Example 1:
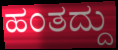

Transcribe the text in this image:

ಹಂತದ್ದು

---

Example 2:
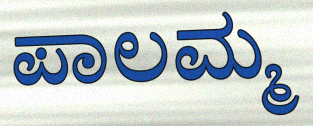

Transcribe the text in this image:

ಪಾಲಮ್ಮ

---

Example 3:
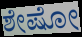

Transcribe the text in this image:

ಶೇಷೋ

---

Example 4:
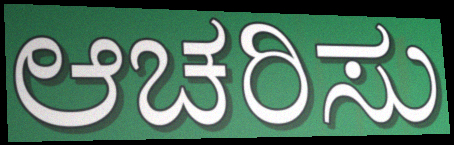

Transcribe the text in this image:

ಆಚರಿಸು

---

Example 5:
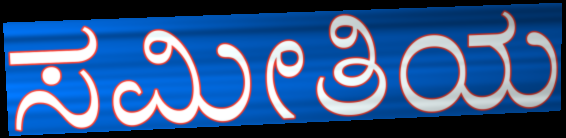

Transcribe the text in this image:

ಸಮೀತಿಯ